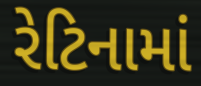
રેટિનામાં